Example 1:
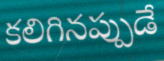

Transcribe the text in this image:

కలిగినప్పుడే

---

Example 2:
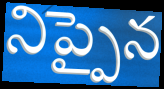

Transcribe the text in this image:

నిప్పైన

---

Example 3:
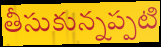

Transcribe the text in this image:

తీసుకున్నప్పటి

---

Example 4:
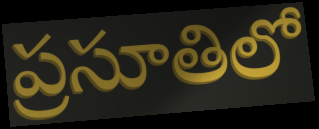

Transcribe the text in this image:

ప్రసూతిలో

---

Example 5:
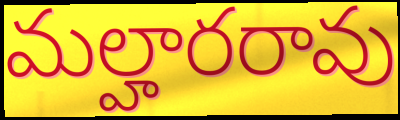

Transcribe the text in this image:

మల్హారరావు